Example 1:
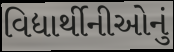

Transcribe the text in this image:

વિદ્યાર્થીનીઓનું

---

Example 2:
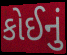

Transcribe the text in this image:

કોઈનું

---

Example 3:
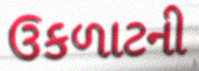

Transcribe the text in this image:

ઉકળાટની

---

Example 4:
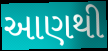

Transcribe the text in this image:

આણથી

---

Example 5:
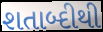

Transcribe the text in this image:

શતાબ્દીથી